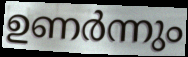
ഉണർന്നും